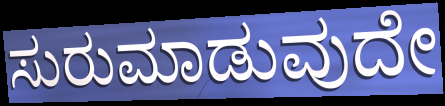
ಸುರುಮಾಡುವುದೇ